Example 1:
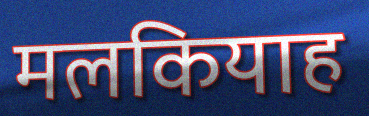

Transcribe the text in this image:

मलकियाह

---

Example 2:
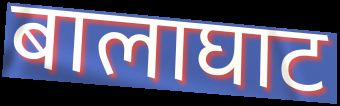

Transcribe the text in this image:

बालाघाट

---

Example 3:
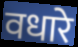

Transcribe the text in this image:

वधारे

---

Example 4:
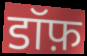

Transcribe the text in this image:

डॉफ़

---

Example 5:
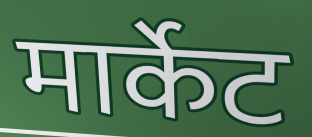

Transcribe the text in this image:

मार्केट